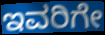
ಇವರಿಗೇ